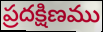
ప్రదక్షిణము